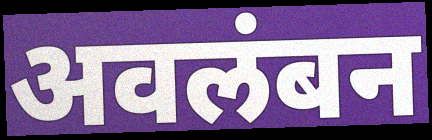
अवलंबन